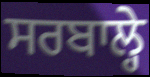
ਸਰਬਾਲ੍ਹੇ